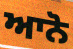
ਆਨੋ